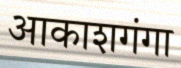
आकाशगंगा